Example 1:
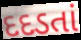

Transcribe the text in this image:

દદડતાં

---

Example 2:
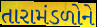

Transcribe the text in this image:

તારામંડળોને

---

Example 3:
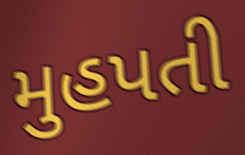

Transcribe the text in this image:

મુહપતી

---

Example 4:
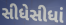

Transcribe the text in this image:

સીધેસીધાં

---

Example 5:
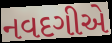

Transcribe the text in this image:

નવદગીએ